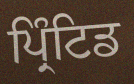
ਪ੍ਰਿੰਟਿਡ